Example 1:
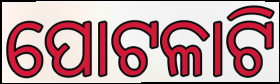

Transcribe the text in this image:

ପୋଟଳାଟି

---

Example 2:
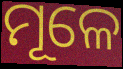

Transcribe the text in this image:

ମୂଳେ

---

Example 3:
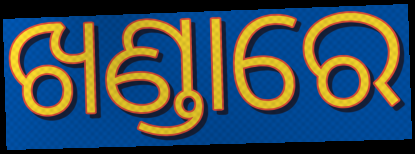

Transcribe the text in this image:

ଖଣ୍ଡାରେ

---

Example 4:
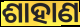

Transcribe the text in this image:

ଶାହାଣ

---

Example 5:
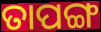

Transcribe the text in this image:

ତାପଙ୍ଗ